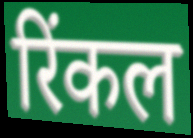
रिंकल